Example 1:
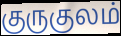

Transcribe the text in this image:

குருகுலம்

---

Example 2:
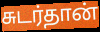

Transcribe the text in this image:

சுடர்தான்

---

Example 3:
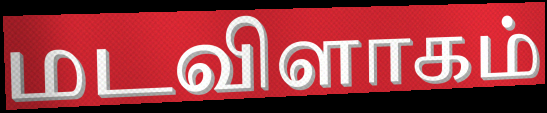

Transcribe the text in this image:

மடவிளாகம்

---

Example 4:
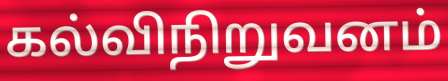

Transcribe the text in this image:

கல்விநிறுவனம்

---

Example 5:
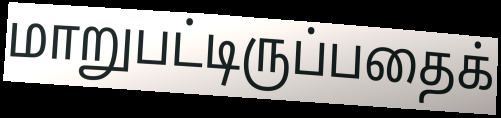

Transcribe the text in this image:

மாறுபட்டிருப்பதைக்